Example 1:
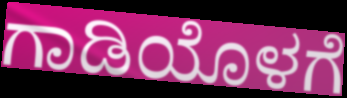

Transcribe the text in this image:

ಗಾಡಿಯೊಳಗೆ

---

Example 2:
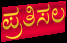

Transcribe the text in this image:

ಪ್ರತಿಸಲ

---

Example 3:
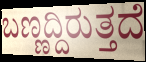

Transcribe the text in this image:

ಬಣ್ಣದ್ದಿರುತ್ತದೆ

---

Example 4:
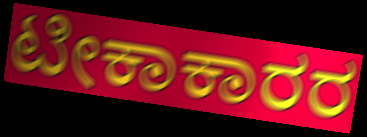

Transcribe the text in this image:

ಟೀಕಾಕಾರರ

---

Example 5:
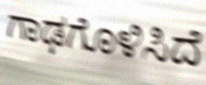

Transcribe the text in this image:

ಗಾಢಗೊಳಿಸಿದೆ